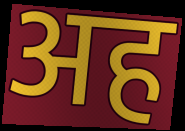
अह